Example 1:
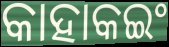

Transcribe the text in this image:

କାହାକଇଂ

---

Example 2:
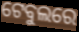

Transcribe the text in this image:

ଟେବୁଲରେ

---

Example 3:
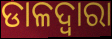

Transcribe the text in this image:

ଡାଳଦ୍ୱାରା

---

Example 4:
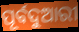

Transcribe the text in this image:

ପୂର୍ବଦୁଆରୀ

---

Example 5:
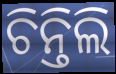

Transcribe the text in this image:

ଚିନ୍ତିଲି